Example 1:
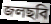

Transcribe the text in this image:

জলছবি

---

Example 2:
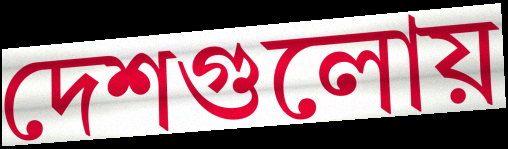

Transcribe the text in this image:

দেশগুলোয়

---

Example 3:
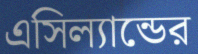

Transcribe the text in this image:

এসিল্যান্ডের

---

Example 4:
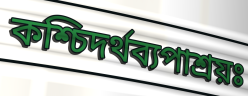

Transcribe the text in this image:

কশ্চিদর্থব্যপাশ্রয়ঃ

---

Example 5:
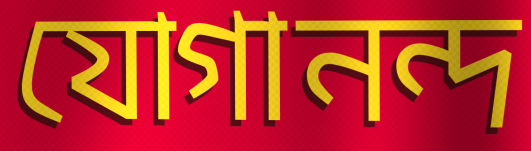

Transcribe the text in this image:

যোগানন্দ